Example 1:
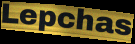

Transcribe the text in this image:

Lepchas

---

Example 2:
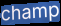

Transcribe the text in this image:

champ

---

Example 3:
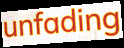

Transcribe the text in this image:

unfading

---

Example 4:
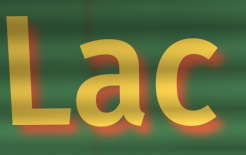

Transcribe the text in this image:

Lac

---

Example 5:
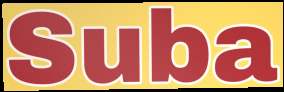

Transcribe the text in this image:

Suba